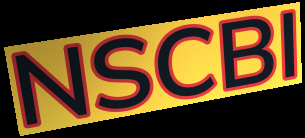
NSCBI